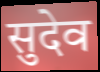
सुदेव